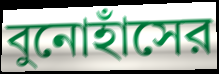
বুনোহাঁসের